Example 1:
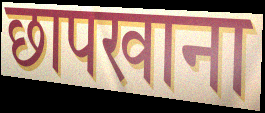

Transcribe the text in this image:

छापखाना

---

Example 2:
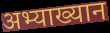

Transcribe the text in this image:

अभ्याख्यान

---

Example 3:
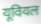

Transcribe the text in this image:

यूवियल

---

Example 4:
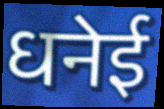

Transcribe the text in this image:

धनेई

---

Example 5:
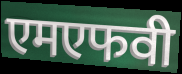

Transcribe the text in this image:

एमएफवी